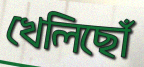
খেলিছোঁ